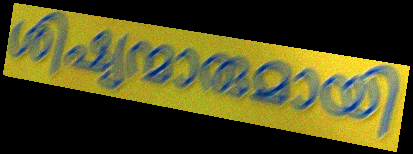
ശിഷ്യന്മാരുമായി